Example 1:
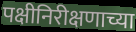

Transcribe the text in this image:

पक्षीनिरीक्षणाच्या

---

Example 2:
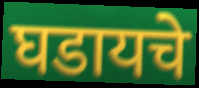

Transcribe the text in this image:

घडायचे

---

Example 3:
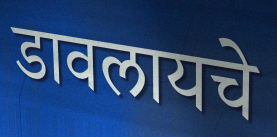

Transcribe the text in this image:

डावलायचे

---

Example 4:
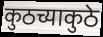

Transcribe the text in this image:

कुठच्याकुठे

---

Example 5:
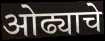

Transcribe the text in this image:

ओढ्याचे